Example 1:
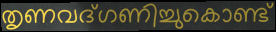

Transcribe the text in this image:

തൃണവദ്ഗണിച്ചുകൊണ്ട്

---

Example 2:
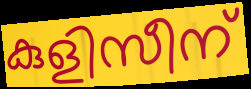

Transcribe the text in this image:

കുളിസീന്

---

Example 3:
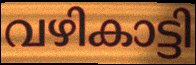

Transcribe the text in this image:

വഴികാട്ടി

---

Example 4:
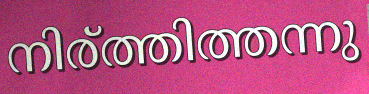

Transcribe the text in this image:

നിര്ത്തിത്തന്നു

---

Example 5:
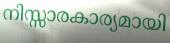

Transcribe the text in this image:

നിസ്സാരകാര്യമായി